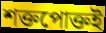
শক্তপোক্তই